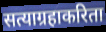
सत्याग्रहाकरिता